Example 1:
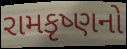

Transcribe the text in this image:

રામકૃષ્ણનો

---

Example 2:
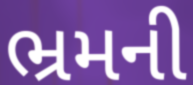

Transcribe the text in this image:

ભ્રમની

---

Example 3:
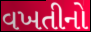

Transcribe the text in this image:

વખતીનો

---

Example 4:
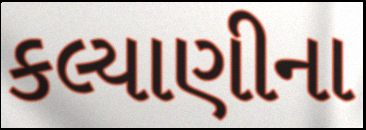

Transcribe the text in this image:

કલ્યાણીના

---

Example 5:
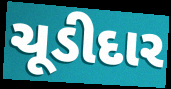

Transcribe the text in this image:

ચૂડીદાર